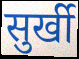
सुर्खी